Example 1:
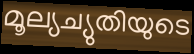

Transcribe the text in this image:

മൂല്യച്യുതിയുടെ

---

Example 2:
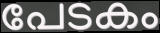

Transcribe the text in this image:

പേടകം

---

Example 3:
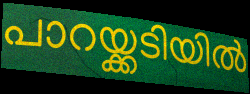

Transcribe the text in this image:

പാറയ്ക്കടിയിൽ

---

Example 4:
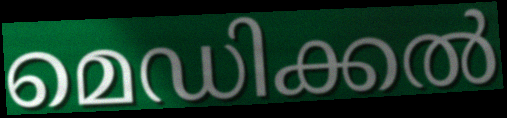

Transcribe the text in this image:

മെഡിക്കൽ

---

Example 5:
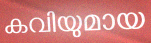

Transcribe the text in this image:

കവിയുമായ